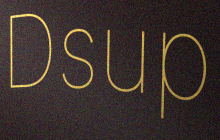
Dsup